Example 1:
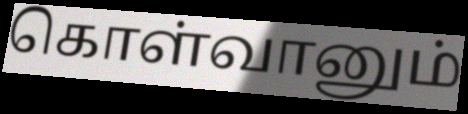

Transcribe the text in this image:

கொள்வானும்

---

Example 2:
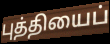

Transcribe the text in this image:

புத்தியைப்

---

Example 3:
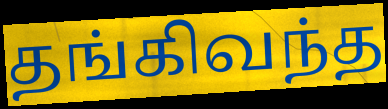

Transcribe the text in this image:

தங்கிவந்த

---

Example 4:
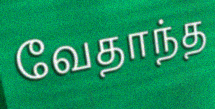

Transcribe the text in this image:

வேதாந்த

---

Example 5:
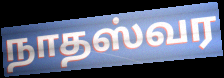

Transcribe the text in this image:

நாதஸ்வர